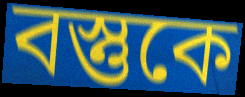
বস্তুকে